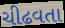
ચીઢવતા